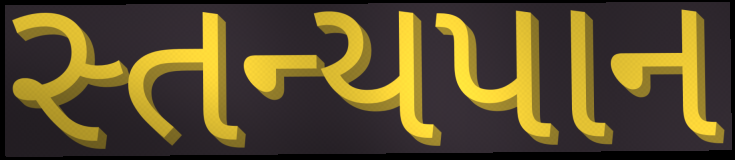
સ્તન્યપાન